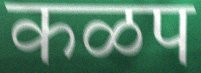
कळप